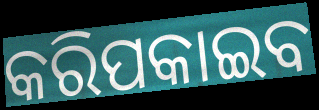
କରିପକାଇବ